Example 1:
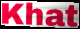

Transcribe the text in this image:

Khat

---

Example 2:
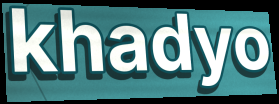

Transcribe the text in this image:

khadyo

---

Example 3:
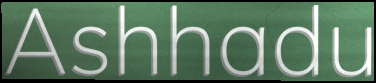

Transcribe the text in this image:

Ashhadu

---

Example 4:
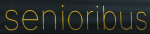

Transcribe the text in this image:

senioribus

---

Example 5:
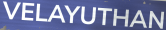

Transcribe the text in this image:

VELAYUTHAN